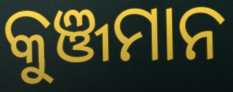
କୁଞ୍ଜମାନ